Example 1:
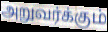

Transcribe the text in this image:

அறுவர்க்கும்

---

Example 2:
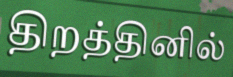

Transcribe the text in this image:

திறத்தினில்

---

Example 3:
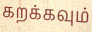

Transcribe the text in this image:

கறக்கவும்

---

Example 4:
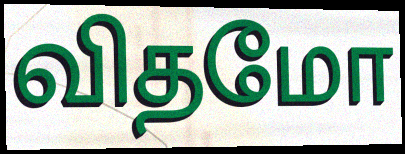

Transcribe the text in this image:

விதமோ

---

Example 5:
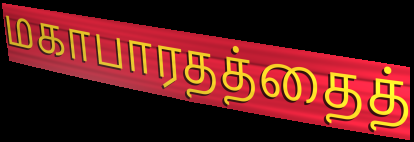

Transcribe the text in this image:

மகாபாரதத்தைத்